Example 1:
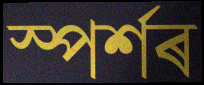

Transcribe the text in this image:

স্পৰ্শৰ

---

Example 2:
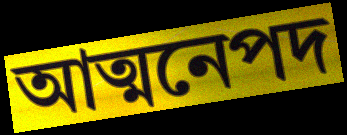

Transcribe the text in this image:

আত্মনেপদ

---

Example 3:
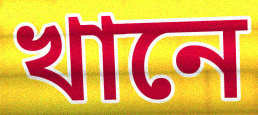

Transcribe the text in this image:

খানে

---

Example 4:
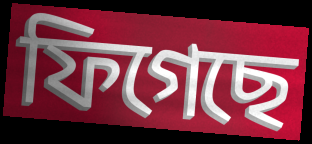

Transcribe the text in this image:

ফিগেছে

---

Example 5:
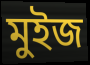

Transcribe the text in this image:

মুইজ